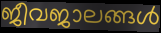
ജീവജാലങ്ങൾ